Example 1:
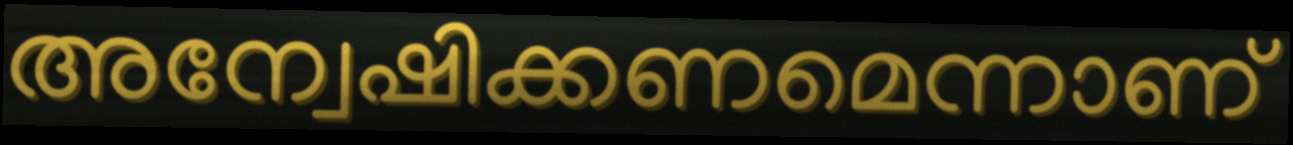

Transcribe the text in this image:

അന്വേഷിക്കണമെന്നാണ്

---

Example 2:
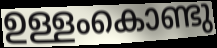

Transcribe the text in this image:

ഉള്ളംകൊണ്ടു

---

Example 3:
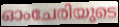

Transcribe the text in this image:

ഓംചേരിയുടെ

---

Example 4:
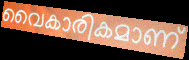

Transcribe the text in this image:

വൈകാരികമാണ്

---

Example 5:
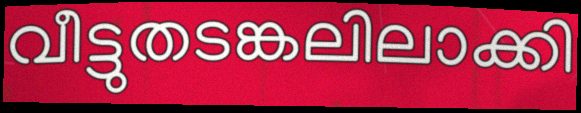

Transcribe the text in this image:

വീട്ടുതടങ്കലിലാക്കി